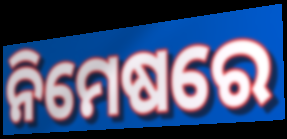
ନିମେଷରେ